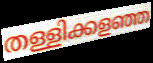
തള്ളിക്കളഞ്ഞ